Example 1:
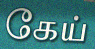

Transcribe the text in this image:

கேய்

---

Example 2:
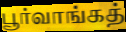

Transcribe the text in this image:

பூர்வாங்கத்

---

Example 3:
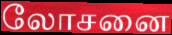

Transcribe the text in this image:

லோசனை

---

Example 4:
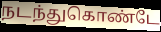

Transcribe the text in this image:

நடந்துகொண்டே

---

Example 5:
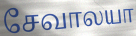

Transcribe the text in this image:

சேவாலயா